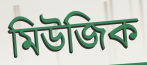
মিউজিক